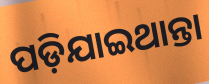
ପଡ଼ିଯାଇଥାନ୍ତା